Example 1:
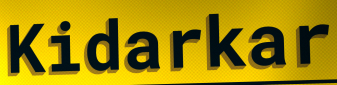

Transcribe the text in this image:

Kidarkar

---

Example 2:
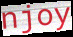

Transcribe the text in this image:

njoy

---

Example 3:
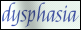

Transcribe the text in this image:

dysphasia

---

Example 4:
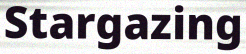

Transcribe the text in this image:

Stargazing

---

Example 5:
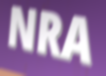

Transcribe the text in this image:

NRA